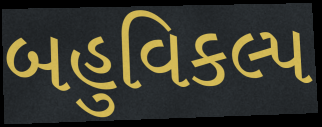
બહુવિકલ્પ